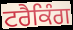
ਟਰੈਕਿੰਗ